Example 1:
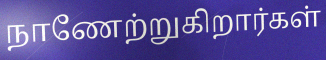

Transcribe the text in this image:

நாணேற்றுகிறார்கள்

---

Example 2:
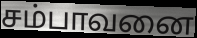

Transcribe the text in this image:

சம்பாவனை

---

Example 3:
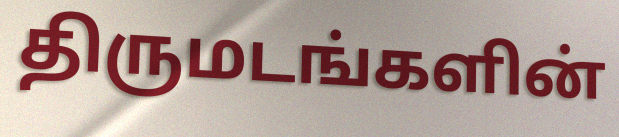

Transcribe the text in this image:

திருமடங்களின்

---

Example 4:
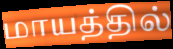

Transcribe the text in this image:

மாயத்தில்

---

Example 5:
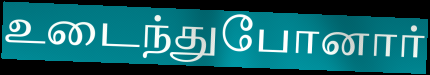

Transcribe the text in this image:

உடைந்துபோனார்